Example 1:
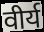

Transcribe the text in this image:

वीर्य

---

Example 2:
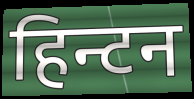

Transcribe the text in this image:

हिन्टन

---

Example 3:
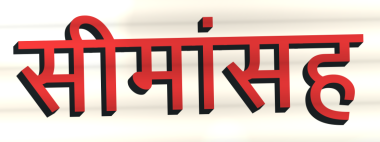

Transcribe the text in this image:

सीमांसह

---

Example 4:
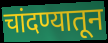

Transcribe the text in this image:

चांदण्यातून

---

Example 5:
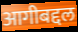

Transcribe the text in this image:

आगीबद्दल